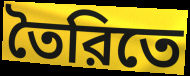
তৈরিতে